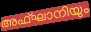
അഫ്ഘാനിയും